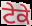
ਟੇਕੇ